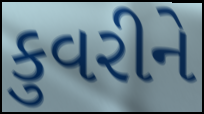
કુવરીને